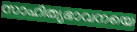
സാഹിത്യഭാവനയെ